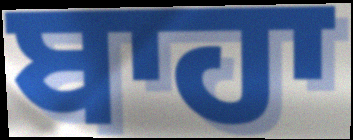
ਬਾਹਾ